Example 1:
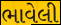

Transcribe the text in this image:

ભાવેલી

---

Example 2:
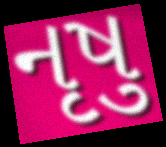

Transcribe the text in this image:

નૃષુ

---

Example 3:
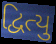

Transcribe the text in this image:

દ્વિત્યુ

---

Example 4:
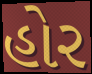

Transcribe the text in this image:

હોર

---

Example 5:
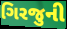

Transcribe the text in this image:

ગિરજુની